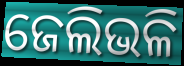
ଜେଲିଭଳି